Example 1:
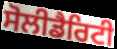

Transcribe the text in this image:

ਸੋਲੀਡੈਰਿਟੀ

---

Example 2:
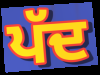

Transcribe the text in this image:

ਪੱਦ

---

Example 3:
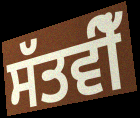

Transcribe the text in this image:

ਸੱਤਵੀਁ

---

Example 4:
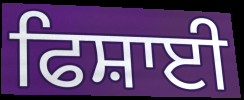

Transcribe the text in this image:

ਫਿਸ਼ਾਈ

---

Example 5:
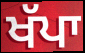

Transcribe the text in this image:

ਖੱਪਾ